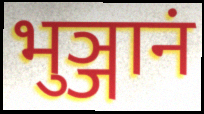
भुञ्जानं